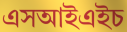
এসআইএইচ